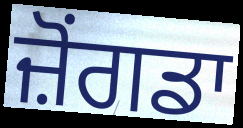
ਜ਼ੋਂਗਡਾ